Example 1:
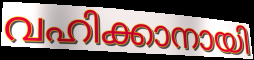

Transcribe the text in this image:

വഹിക്കാനായി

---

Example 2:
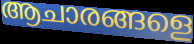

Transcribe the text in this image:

ആചാരങ്ങളെ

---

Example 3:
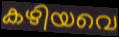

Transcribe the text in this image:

കഴിയവെ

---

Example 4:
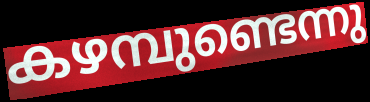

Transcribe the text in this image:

കഴമ്പുണ്ടെന്നു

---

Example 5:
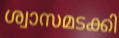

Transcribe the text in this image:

ശ്വാസമടക്കി